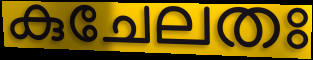
കുചേലതഃ